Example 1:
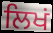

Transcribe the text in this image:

ਲਿਖਂ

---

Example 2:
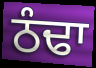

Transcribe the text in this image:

ਠੰਢਾ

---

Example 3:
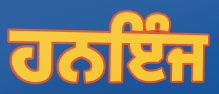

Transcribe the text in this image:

ਹਨਇੰਜ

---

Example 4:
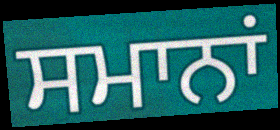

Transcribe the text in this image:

ਸਮਾਨਾਂ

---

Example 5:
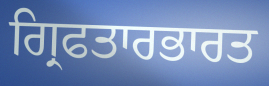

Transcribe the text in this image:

ਗ੍ਰਿਫਤਾਰਭਾਰਤ